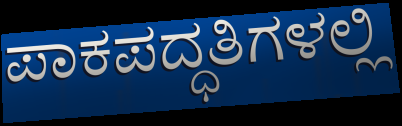
ಪಾಕಪದ್ಧತಿಗಳಲ್ಲಿ